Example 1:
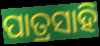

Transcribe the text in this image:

ପାତ୍ରସାହି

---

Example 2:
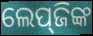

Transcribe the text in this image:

ଲେପ୍‌ଜିଙ୍କ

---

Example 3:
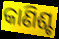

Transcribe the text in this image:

କାଣିଶ୍ଚ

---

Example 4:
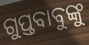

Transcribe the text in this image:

ଗୁପ୍ତବାବୁଙ୍କୁ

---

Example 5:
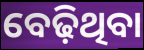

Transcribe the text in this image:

ବେଢ଼ିଥିବା